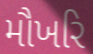
મૌખરિ